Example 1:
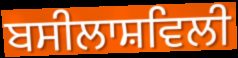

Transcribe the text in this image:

ਬਸੀਲਾਸ਼ਵਿਲੀ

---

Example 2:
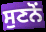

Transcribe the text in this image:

ਸੁਣਨੋਂ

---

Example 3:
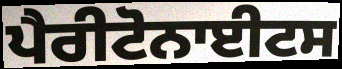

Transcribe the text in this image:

ਪੈਰੀਟੋਨਾਈਟਸ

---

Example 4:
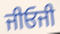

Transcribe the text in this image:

ਜੀਓਜੀ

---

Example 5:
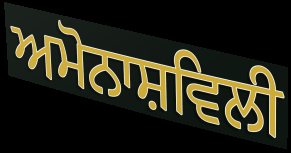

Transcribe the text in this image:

ਅਮੋਨਾਸ਼ਵਿਲੀ